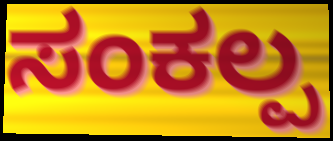
ಸಂಕಲ್ಪ